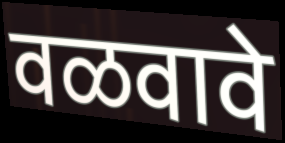
वळवावे